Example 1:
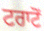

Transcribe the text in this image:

ਟਰਾਟੋਂ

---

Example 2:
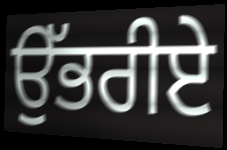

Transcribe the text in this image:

ਉੱਭਰੀਏ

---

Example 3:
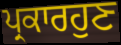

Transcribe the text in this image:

ਪ੍ਰਕਾਰਹੁਣ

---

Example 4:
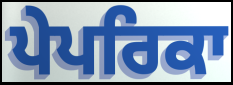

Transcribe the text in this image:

ਪੇਪਰਿਕਾ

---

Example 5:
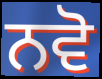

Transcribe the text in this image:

ਨਵੋ